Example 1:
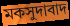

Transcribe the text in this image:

মকসুদাবাদ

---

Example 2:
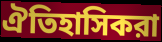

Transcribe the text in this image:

ঐতিহাসিকরা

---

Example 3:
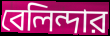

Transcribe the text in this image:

বেলিন্দার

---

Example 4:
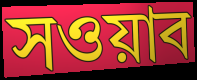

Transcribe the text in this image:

সওয়াব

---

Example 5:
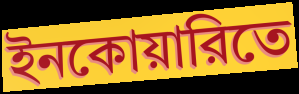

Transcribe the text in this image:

ইনকোয়ারিতে